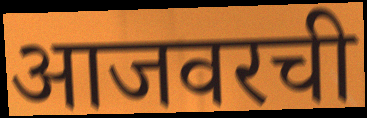
आजवरची